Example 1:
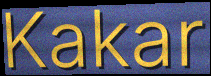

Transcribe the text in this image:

Kakar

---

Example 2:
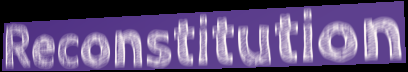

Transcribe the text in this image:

Reconstitution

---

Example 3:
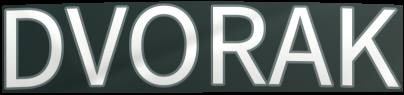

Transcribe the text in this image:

DVORAK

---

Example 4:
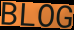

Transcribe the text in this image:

BLOG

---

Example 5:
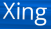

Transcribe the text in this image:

Xing